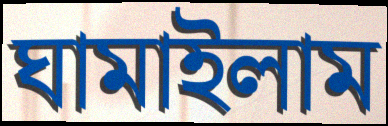
ঘামাইলাম